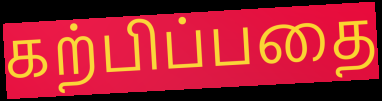
கற்பிப்பதை